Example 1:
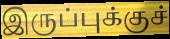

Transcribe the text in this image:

இருப்புக்குச்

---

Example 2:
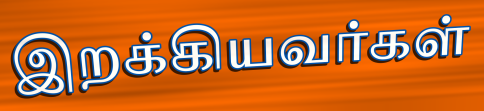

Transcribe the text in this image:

இறக்கியவர்கள்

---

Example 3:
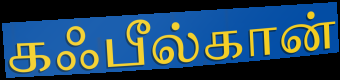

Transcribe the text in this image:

கஃபீல்கான்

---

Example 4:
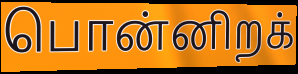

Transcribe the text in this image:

பொன்னிறக்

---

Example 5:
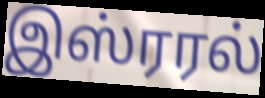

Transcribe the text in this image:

இஸ்ரரல்